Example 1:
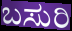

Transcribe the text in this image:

ಬಸುರಿ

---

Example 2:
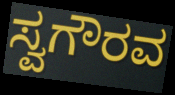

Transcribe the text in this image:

ಸ್ವಗೌರವ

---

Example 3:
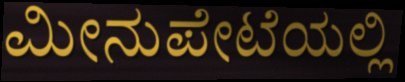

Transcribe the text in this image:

ಮೀನುಪೇಟೆಯಲ್ಲಿ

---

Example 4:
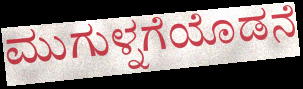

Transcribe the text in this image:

ಮುಗುಳ್ನಗೆಯೊಡನೆ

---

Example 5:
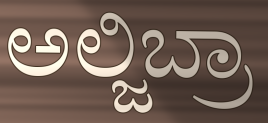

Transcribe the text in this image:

ಅಲ್ಜಿಬ್ರಾ